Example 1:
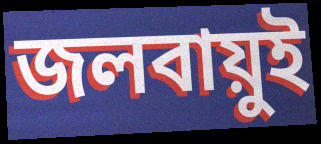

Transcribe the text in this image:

জলবায়ুই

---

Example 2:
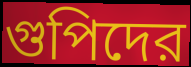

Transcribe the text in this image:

গুপিদের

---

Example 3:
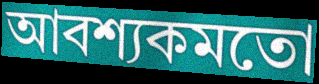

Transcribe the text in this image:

আবশ্যকমতো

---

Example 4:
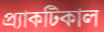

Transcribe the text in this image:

প্র্যাকটিকাল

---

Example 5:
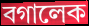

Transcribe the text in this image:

বগালেক